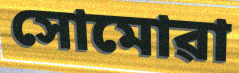
সোমোৱা